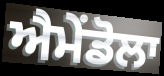
ਐਮੇਂਡੋਲਾ